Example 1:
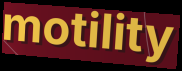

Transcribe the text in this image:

motility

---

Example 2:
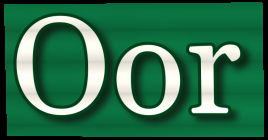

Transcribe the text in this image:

Oor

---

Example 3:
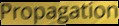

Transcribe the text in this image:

Propagation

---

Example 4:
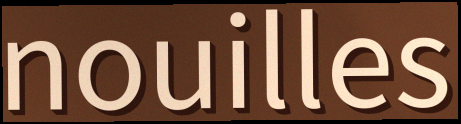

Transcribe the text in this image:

nouilles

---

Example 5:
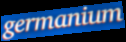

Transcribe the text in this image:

germanium